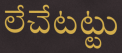
లేచేటట్టు